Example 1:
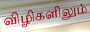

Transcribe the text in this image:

விழிகளிலும்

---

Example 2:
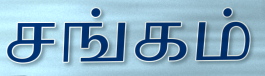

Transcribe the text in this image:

சங்கம்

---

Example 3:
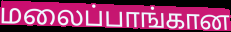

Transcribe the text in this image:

மலைப்பாங்கான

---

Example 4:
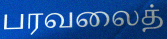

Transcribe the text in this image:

பரவலைத்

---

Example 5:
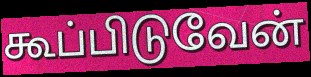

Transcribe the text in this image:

கூப்பிடுவேன்